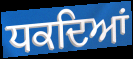
ਧਕਦਿਆਂ